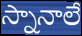
స్నానాలే